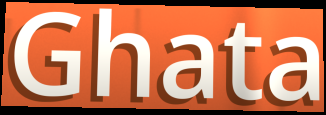
Ghata